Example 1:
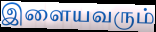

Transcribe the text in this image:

இளையவரும்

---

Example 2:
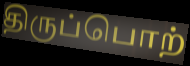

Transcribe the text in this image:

திருப்பொற்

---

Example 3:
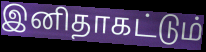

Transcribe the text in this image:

இனிதாகட்டும்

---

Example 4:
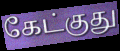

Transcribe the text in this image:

கேட்குது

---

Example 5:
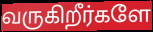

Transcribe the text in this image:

வருகிறீர்களே